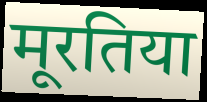
मूरतिया